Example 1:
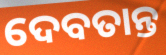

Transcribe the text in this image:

ଦେବତାନ୍ତ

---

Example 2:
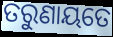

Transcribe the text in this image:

ତରୁଣାୟତେ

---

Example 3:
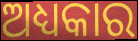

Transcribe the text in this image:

ଅଧ୍ଯକାର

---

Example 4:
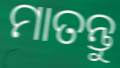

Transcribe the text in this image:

ମାତନ୍ତୁ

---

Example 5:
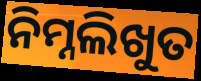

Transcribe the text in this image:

ନିମ୍ନଲିଖୁତ